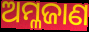
ଅମ୍ଳଜାଣ